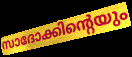
സാദോക്കിന്റെയും